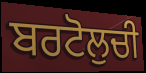
ਬਰਟੋਲੁਚੀ